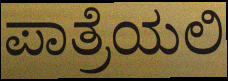
ಪಾತ್ರೆಯಲಿ